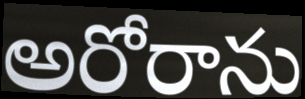
అరోరాను